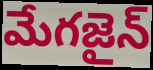
మేగజైన్